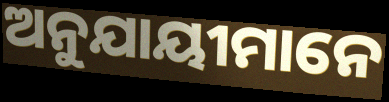
ଅନୁଯାୟୀମାନେ